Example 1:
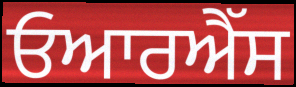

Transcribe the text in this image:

ਓਆਰਐੱਸ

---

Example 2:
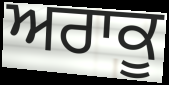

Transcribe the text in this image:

ਅਰਾਕੂ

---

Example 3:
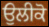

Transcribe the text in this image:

ਉਲੀਕੋ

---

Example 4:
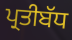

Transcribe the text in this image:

ਪ੍ਰਤੀਬੱਧ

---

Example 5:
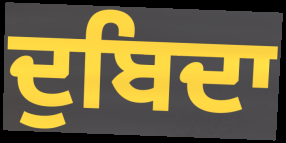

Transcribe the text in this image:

ਦੁਬਿਦਾ